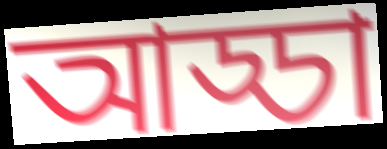
আড্ডা